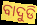
ବାଦୁଡି